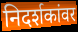
निदर्शकांवर